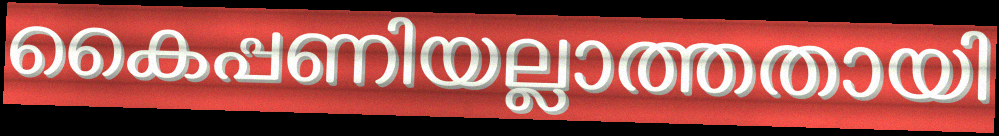
കൈപ്പണിയല്ലാത്തതായി